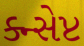
ક્ન્સેપ્ટ